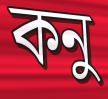
কনু